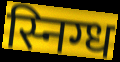
स्‍निग्ध